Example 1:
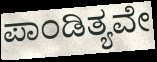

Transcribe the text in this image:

ಪಾಂಡಿತ್ಯವೇ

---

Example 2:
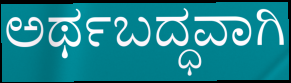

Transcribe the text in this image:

ಅರ್ಥಬದ್ಧವಾಗಿ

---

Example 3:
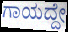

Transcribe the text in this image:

ಗಾಯದ್ದೇ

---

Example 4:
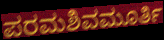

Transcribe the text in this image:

ಪರಮಶಿವಮೂರ್ತಿ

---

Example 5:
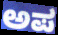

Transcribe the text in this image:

ಅಪ